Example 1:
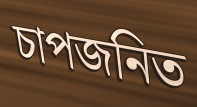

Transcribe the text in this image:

চাপজনিত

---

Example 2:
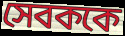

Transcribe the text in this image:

সেবককে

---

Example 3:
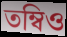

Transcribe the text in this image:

তম্বিও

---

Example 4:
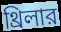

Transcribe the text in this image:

থ্রিলার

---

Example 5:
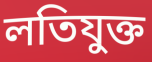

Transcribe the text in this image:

লতিযুক্ত